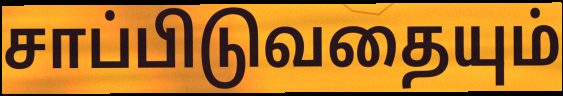
சாப்பிடுவதையும்